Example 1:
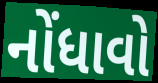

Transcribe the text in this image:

નોંધાવો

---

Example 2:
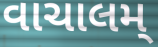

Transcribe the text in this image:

વાચાલમ્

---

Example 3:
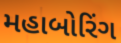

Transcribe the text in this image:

મહાબોરિંગ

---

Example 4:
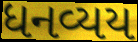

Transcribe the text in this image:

ધનવ્યય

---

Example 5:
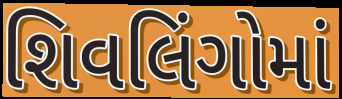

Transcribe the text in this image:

શિવલિંગોમાં